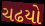
ચઢયો